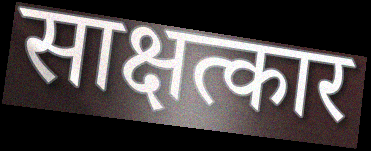
साक्षत्कार